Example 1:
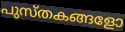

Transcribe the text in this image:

പുസ്തകങ്ങളോ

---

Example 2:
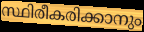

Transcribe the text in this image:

സ്ഥിരീകരിക്കാനും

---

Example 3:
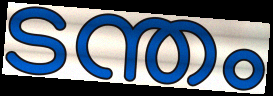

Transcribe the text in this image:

ടന്തം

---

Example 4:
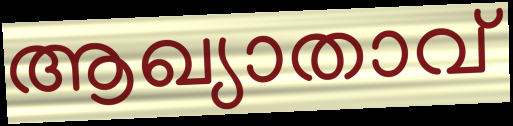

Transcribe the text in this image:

ആഖ്യാതാവ്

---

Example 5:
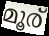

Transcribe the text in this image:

മൂര്